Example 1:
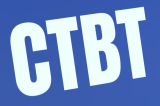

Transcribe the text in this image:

CTBT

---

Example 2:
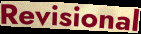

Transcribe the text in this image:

Revisional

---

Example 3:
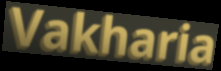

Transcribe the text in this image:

Vakharia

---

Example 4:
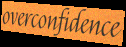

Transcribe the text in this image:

overconfidence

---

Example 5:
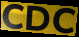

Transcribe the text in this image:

CDC